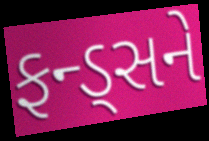
ફન્ડ્સને